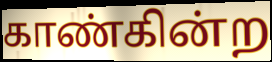
காண்கின்ற